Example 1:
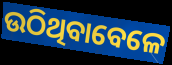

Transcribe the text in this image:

ଉଠିଥିବାବେଳେ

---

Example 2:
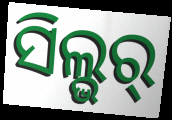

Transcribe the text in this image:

ସିଲ୍ଭର୍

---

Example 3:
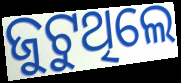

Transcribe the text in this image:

ଜୁଟୁଥିଲେ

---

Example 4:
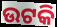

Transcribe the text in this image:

ଉଟକି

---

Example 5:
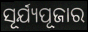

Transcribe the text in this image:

ସୂର୍ଯ୍ୟପୂଜାର